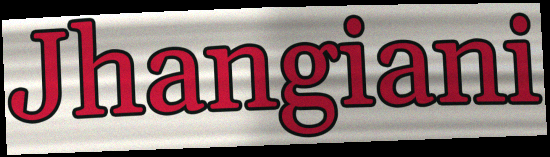
Jhangiani